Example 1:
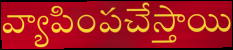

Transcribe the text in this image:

వ్యాపింపచేస్తాయి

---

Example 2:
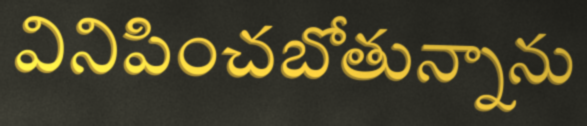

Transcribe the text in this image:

వినిపించబోతున్నాను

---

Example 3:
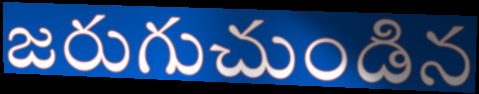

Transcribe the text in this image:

జరుగుచుండిన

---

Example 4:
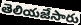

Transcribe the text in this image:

తెలియజేసారు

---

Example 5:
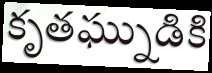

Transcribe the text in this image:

కృతఘ్నుడికి